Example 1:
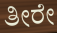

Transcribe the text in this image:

ತೀರೇ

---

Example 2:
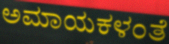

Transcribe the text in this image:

ಅಮಾಯಕಳಂತೆ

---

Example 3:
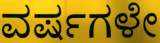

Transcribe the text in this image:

ವರ್ಷಗಳೇ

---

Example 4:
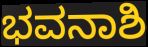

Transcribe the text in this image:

ಭವನಾಶಿ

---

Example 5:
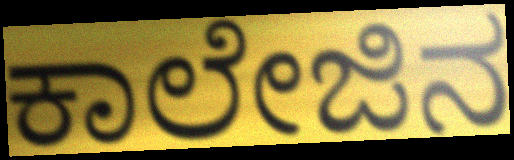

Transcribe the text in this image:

ಕಾಲೇಜಿನ